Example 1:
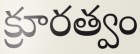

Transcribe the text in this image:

క్రూరత్వం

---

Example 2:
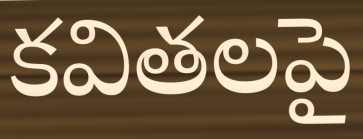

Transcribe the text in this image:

కవితలపై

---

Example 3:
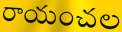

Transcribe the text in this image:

రాయంచల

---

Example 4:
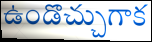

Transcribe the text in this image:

ఉండొచ్చుగాక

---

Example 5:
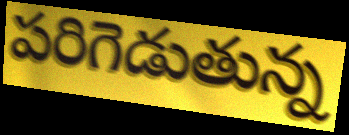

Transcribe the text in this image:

పరిగెడుతున్న